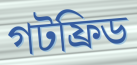
গটফ্রিড